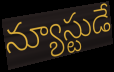
న్యూస్టుడే